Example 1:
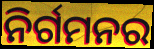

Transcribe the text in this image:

ନିର୍ଗମନର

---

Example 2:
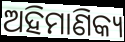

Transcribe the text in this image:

ଅହିମାଣିକ୍ୟ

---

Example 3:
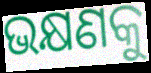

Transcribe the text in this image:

ଭକ୍ଷଣକୁ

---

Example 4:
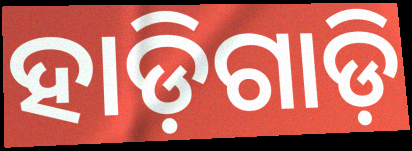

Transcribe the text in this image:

ହାଡ଼ିଗାଡ଼ି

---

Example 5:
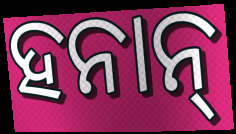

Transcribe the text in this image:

ହନାନ୍